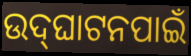
ଉଦ୍‌ଘାଟନପାଇଁ